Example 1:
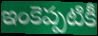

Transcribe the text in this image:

ఇంకెప్పటికీ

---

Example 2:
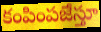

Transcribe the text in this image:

కంపింపజేస్తూ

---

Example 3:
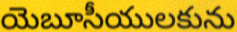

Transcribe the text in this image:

యెబూసీయులకును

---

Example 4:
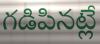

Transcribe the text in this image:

గడిపినట్లే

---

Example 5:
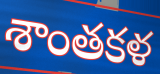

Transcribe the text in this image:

శాంతకళ